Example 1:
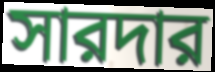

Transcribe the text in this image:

সারদার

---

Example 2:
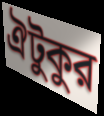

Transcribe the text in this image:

ঐটুকুর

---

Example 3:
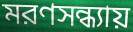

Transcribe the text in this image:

মরণসন্ধ্যায়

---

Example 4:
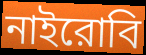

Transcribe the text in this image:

নাইরোবি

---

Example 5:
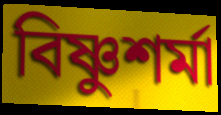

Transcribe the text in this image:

বিষ্ণুশর্মা